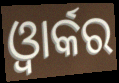
ଓ୍ବାର୍କର